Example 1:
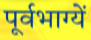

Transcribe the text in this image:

पूर्वभाग्यें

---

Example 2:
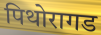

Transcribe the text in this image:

पिथोरागड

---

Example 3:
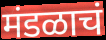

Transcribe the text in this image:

मंडळाचं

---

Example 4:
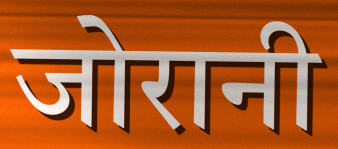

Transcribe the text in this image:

जोरानी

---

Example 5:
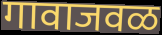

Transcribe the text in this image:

गावाजवळ